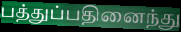
பத்துப்பதினைந்து